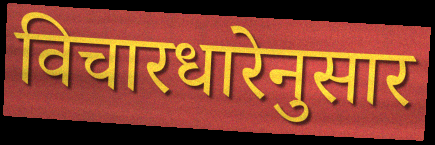
विचारधारेनुसार